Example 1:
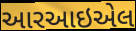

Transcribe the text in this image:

આરઆઇએલ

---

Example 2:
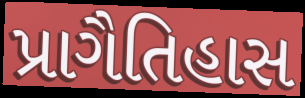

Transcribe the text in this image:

પ્રાગૈતિહાસ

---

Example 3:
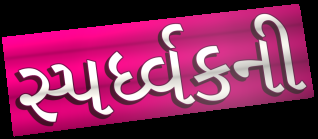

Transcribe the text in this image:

સ્પર્ધ્વકની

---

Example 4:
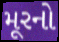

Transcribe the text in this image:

મૂરનો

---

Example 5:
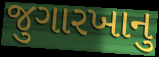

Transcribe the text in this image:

જુગારખાનુ